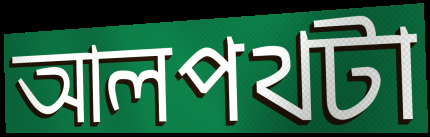
আলপথটা